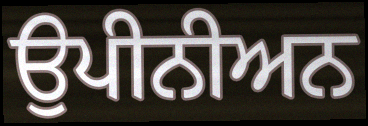
ਉਪੀਨੀਅਨ